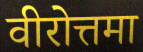
वीरोत्तमा